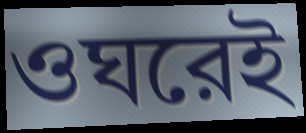
ওঘরেই